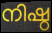
നിഷ്ഠ